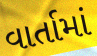
વાર્તામાં